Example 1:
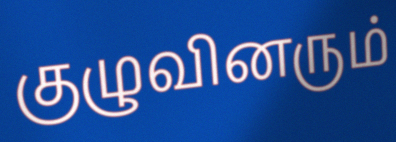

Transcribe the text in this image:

குழுவினரும்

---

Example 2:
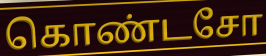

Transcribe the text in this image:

கொண்டசோ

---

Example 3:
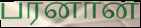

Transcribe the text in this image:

பரனான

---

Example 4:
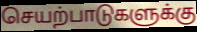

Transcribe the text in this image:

செயற்பாடுகளுக்கு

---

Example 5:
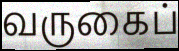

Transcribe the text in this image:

வருகைப்